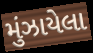
મુંઝાયેલા